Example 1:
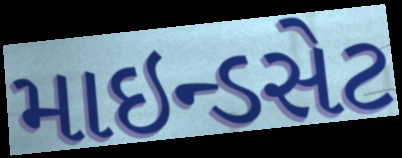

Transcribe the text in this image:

માઇન્ડસેટ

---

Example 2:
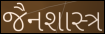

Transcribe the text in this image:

જૈનશાસ્ત્ર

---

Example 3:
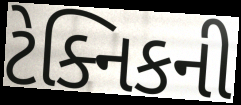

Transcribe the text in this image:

ટેક્નિકની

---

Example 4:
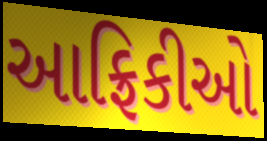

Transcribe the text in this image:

આફ્રિકીઓ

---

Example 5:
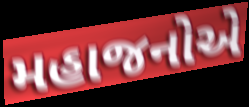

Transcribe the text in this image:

મહાજનોએ